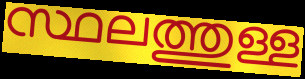
സ്ഥലത്തുള്ള